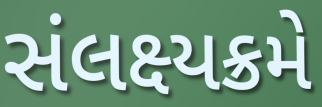
સંલક્ષ્યક્રમે